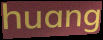
huang